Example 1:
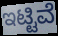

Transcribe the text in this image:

ಇಟ್ಟಿವೆ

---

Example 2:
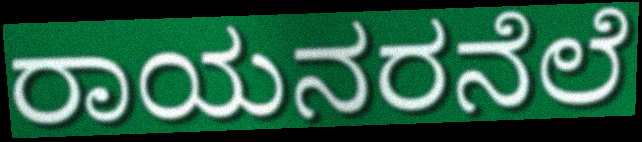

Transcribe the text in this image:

ರಾಯನರನೆಲೆ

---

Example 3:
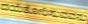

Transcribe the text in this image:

ದಯೆತೋರಿಸುವವನು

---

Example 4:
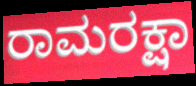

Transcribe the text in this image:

ರಾಮರಕ್ಷಾ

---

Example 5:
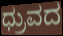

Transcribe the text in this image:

ಧ್ರುವದ